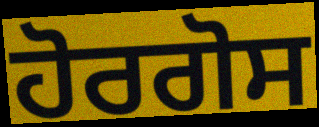
ਹੋਰਗੋਸ